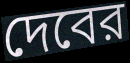
দেবের